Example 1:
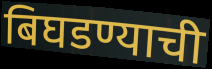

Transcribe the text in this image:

बिघडण्याची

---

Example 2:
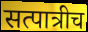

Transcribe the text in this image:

सत्पात्रीच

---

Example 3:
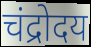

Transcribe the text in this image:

चंद्रोदय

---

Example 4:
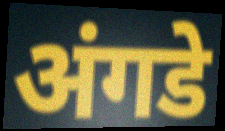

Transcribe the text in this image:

अंगडे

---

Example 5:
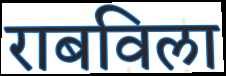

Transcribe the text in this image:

राबविला